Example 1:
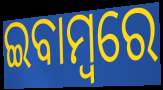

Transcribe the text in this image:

ଇବାମ୍ବରେ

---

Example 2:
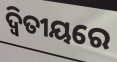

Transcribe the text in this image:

ଦ୍ୱିତୀୟରେ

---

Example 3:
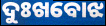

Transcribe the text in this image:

ଦୁଃଖବୋଝ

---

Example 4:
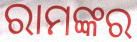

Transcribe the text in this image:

ରାମଙ୍କର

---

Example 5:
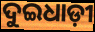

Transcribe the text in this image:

ଦୁଇଧାଡ଼ୀ